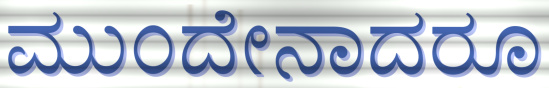
ಮುಂದೇನಾದರೂ